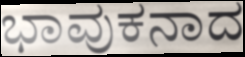
ಭಾವುಕನಾದ